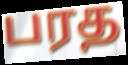
பரத